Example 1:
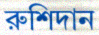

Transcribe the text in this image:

রুশিদান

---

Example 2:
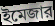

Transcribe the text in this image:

ইমেজার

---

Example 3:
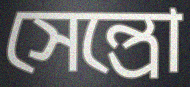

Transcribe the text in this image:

সেন্ত্রো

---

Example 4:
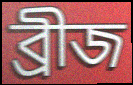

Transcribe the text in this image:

ব্রীজ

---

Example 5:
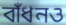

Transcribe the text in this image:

বাঁধনও